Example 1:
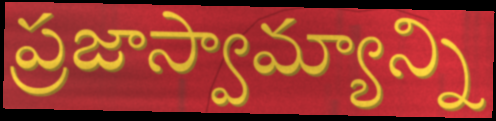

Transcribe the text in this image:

ప్రజాస్వామ్యాన్ని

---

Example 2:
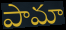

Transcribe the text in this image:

పామా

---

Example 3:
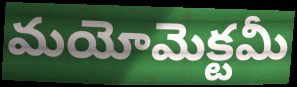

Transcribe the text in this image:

మయోమెక్టమీ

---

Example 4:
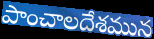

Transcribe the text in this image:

పాంచాలదేశమున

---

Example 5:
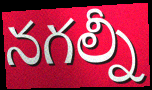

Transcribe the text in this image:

నగల్నీ